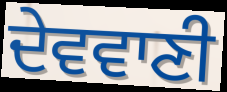
ਦੇਵਵਾਣੀ